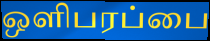
ஒளிபரப்பை